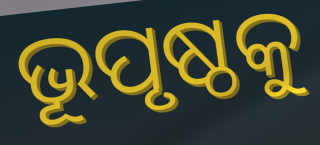
ଭୂପୃଷ୍ଠକୁ